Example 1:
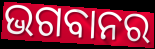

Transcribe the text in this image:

ଭଗବାନର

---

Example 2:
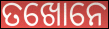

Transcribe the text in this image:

ତଖୋନେ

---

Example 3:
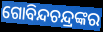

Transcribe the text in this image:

ଗୋବିନ୍ଦଚନ୍ଦ୍ରଙ୍କର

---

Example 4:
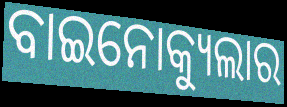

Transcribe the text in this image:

ବାଇନୋକ୍ୟୁଲାର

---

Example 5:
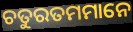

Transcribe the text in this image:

ଚତୁରତମମାନେ